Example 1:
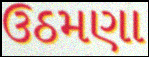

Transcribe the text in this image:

ઉઠમણા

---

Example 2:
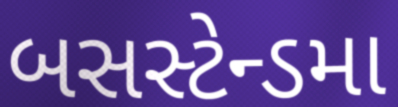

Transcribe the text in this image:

બસસ્ટેન્ડમા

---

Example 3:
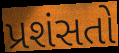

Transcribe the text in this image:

પ્રશંસતો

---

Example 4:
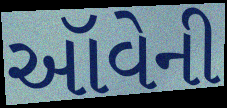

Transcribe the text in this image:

ઑવેની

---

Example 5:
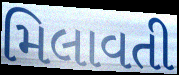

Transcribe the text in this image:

મિલાવતી